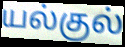
யல்குல்